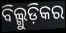
ବିଲ୍ଗୁଡ଼ିକର